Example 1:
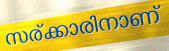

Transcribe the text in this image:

സര്ക്കാരിനാണ്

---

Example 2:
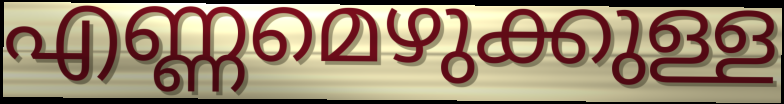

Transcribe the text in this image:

എണ്ണമെഴുക്കുള്ള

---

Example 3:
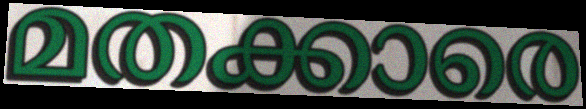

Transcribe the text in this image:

മതക്കാരെ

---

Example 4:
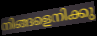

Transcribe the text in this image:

നിങ്ങളെനിക്കു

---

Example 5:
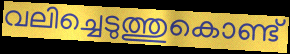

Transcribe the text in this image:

വലിച്ചെടുത്തുകൊണ്ട്